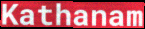
Kathanam